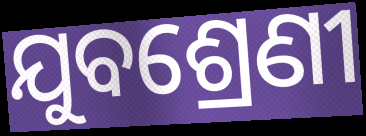
ଯୁବଶ୍ରେଣୀ